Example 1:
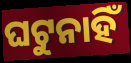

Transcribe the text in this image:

ଘଟୁନାହିଁ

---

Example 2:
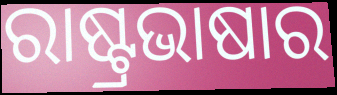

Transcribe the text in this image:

ରାଷ୍ଟ୍ରଭାଷାର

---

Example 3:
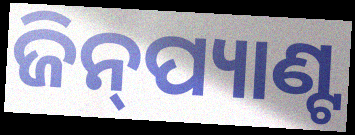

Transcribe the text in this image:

ଜିନ୍‍ପ୍ୟାଣ୍ଟ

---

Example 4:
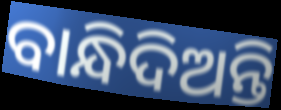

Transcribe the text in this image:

ବାନ୍ଧିଦିଅନ୍ତି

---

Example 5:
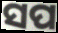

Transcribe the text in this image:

ସପ